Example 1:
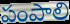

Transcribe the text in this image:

పంపాలి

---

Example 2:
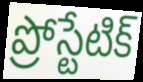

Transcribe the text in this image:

ప్రోస్టేటిక్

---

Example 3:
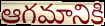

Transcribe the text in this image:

ఆగమానికి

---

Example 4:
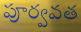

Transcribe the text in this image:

పూర్వవత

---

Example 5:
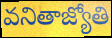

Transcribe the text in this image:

వనితాజ్యోతి